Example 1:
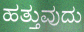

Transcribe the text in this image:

ಹತ್ತುವುದು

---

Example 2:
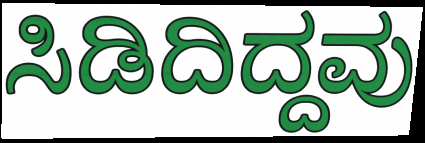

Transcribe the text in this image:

ಸಿಡಿದಿದ್ದವು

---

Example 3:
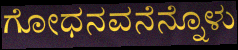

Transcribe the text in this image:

ಗೋಧನವನೆನ್ನೊಳು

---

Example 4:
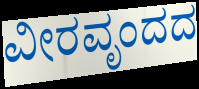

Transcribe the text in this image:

ವೀರವೃಂದದ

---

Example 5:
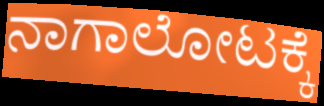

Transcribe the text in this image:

ನಾಗಾಲೋಟಕ್ಕೆ